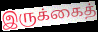
இருக்கைத்